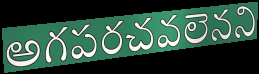
అగపరచవలెనని